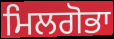
ਮਿਲਗੋਭਾ